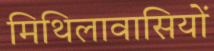
मिथिलावासियों